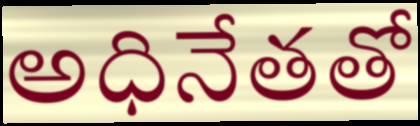
అధినేతతో